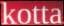
kotta